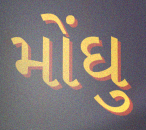
મોંઘુ